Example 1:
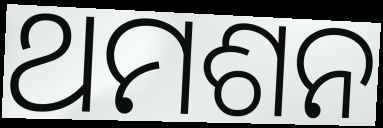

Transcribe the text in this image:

ଥମଶନ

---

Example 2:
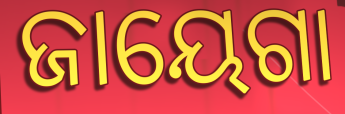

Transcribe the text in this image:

ଜାୟେଗା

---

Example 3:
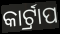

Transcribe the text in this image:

କାର୍ଟ୍ରାପ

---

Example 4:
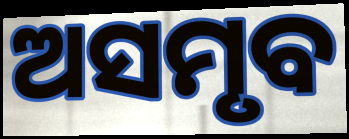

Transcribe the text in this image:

ଅସମୃବ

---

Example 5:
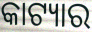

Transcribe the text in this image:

କାଟ୍ୟାର